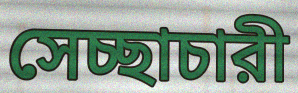
সেচ্ছাচারী